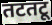
तटतटू